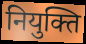
नियुक्ति